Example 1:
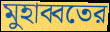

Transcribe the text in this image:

মুহাব্বতের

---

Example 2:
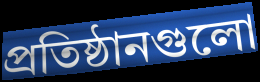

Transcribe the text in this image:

প্রতিষ্ঠানগুলো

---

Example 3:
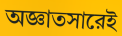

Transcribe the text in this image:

অজ্ঞাতসারেই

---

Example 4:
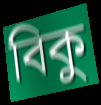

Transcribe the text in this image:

বিকু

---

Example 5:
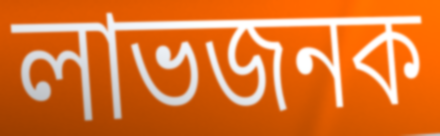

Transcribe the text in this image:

লাভজনক